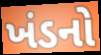
ખંડનો